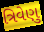
ત્રિવેણુ